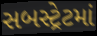
સબસ્ટ્રેટમાં